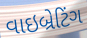
વાઇબ્રેટિંગ